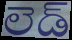
లెడ్